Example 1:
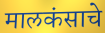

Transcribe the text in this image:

मालकंसाचे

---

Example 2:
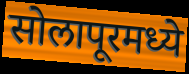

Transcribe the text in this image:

सोलापूरमध्ये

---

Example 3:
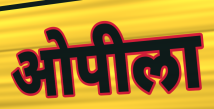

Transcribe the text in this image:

ओपीला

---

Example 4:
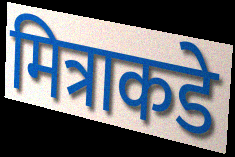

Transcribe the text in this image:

मित्राकडे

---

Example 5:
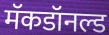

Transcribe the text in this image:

मॅकडॉनल्ड